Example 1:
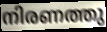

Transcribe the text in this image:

നിരണത്തു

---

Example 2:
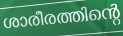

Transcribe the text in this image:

ശാരീരത്തിന്റെ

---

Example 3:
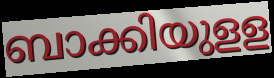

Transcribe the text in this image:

ബാക്കിയുളള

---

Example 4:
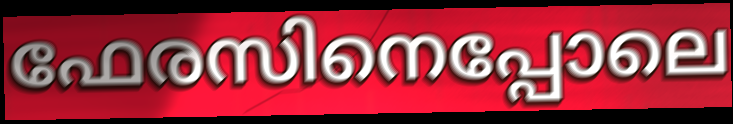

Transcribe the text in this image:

ഫേരസിനെപ്പോലെ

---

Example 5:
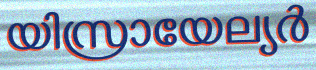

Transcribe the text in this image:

യിസ്രായേല്യർ